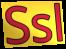
Ssl